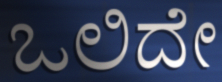
ಒಲಿದೇ